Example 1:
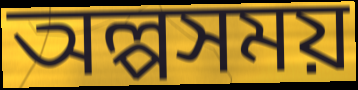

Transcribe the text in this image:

অল্পসময়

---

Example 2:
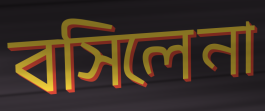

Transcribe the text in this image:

বসিলেনা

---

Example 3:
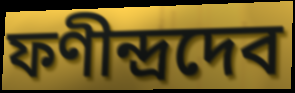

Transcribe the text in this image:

ফণীন্দ্রদেব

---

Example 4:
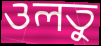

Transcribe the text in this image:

ওলতু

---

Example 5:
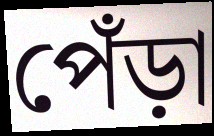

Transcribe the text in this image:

পেঁড়া